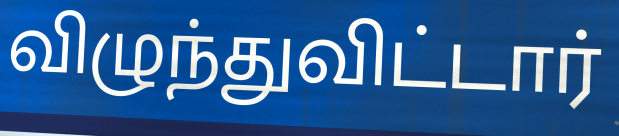
விழுந்துவிட்டார்